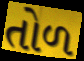
તોળ